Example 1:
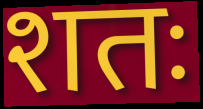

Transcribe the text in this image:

शतः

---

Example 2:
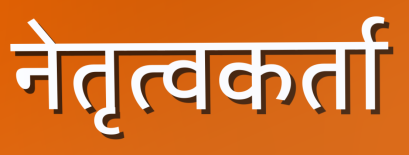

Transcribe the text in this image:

नेतृत्वकर्ता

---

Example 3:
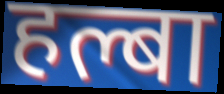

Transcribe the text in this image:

हल्बा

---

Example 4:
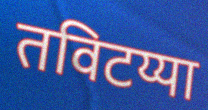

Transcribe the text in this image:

तविटय्या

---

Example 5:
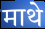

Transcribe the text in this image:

माथे